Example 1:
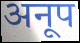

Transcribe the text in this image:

अनूप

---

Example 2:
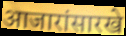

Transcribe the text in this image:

आजारांसारखे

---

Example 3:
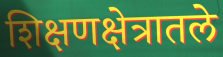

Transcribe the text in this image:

शिक्षणक्षेत्रातले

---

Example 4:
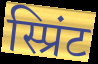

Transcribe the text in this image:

स्प्रिंट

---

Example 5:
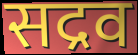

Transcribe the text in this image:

सद्रव